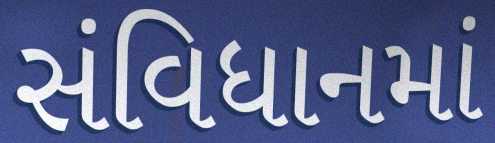
સંવિધાનમાં